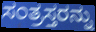
ಸಂತ್ರಸ್ತರನ್ನು